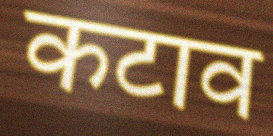
कटाव